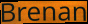
Brenan